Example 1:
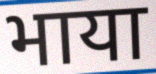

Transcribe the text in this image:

भाया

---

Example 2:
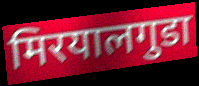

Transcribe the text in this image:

मिरयालगुडा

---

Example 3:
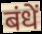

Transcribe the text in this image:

बंधें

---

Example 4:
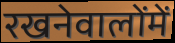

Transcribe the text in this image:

रखनेवालोंमें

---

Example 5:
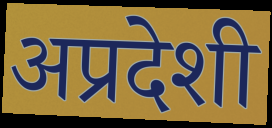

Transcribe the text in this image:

अप्रदेशी